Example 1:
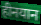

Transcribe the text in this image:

हीनयान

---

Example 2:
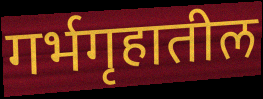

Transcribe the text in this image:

गर्भगृहातील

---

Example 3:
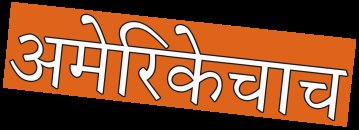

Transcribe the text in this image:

अमेरिकेचाच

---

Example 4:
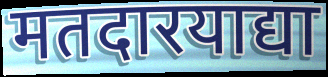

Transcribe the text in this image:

मतदारयाद्या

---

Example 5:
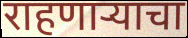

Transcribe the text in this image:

राहणाऱ्याचा